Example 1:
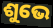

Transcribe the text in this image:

ଶୁଭେ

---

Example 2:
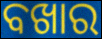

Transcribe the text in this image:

ବଖାର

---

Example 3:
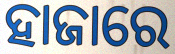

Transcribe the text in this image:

ହାଜାରେ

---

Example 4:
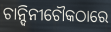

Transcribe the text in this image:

ଚାନ୍ଦିନୀଚୌକଠାରେ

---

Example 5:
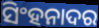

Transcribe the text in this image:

ସିଂହନାଦର